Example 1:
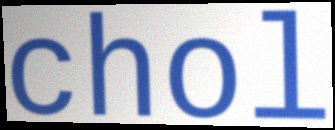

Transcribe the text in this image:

chol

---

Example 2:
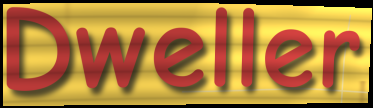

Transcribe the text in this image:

Dweller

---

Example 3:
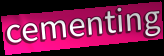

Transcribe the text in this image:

cementing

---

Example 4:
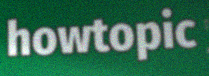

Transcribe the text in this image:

howtopic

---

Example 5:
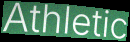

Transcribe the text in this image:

Athletic